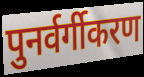
पुनर्वर्गीकरण